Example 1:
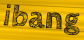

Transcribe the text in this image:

ibang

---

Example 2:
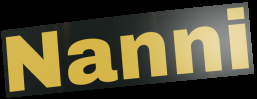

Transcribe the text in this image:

Nanni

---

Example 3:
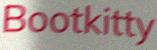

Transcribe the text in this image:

Bootkitty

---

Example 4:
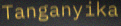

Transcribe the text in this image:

Tanganyika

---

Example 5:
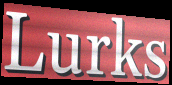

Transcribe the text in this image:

Lurks